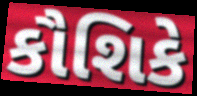
કૌશિકે